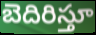
బెదిరిస్తూ